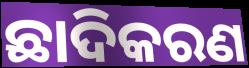
ଛାଦିକରଣ